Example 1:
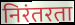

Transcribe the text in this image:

निरंतरता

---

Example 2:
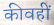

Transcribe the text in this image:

कीवहीं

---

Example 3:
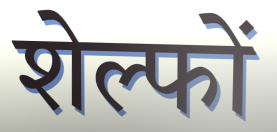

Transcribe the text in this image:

शेल्फों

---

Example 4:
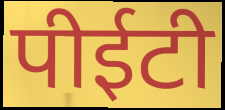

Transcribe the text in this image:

पीईटी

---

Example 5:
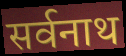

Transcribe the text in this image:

सर्वनाथ